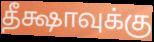
தீக்ஷாவுக்கு